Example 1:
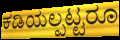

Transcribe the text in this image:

ಕಡಿಯಲ್ಪಟ್ಟರೂ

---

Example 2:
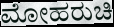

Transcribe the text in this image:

ಮೋಹರುಚಿ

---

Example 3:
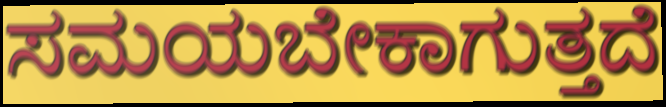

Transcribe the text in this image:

ಸಮಯಬೇಕಾಗುತ್ತದೆ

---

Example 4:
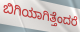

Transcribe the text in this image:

ಬಿಗಿಯಾಗಿತ್ತೆಂದರೆ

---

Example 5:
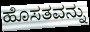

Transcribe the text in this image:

ಹೊಸತವನ್ನು